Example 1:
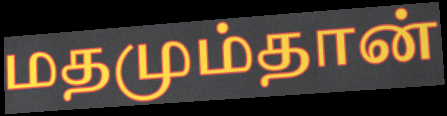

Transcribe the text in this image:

மதமும்தான்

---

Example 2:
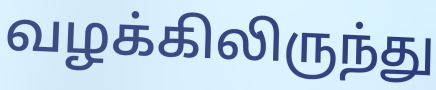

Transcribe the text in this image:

வழக்கிலிருந்து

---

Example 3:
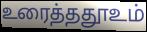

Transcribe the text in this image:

உரைத்ததூஉம்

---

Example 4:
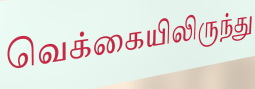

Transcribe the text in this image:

வெக்கையிலிருந்து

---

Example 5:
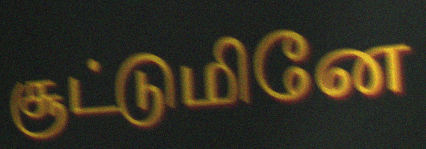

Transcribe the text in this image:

சூட்டுமினே